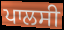
ਪਾਲਸੀ